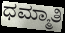
ಧಮ್ಮಾತಿ